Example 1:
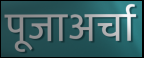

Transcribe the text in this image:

पूजाअर्चा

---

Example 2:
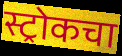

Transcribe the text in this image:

स्ट्रोकचा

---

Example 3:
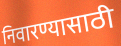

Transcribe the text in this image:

निवारण्यासाठी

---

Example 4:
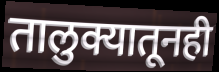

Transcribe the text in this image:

तालुक्यातूनही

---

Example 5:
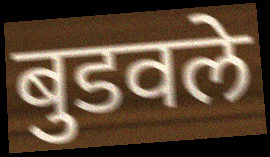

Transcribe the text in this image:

बुडवले